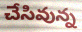
చేసివున్న